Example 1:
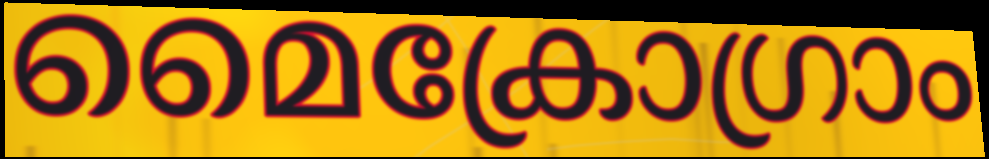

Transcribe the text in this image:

മൈക്രോഗ്രാം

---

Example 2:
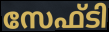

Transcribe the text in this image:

സേഫ്ടി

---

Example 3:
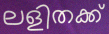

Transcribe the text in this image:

ലളിതക്ക്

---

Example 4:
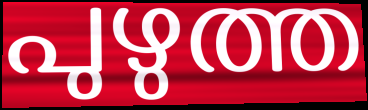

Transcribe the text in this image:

പുഴുത്ത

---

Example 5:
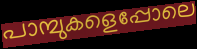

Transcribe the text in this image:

പാമ്പുകളെപ്പോലെ